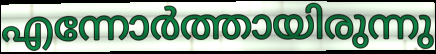
എന്നോർത്തായിരുന്നു